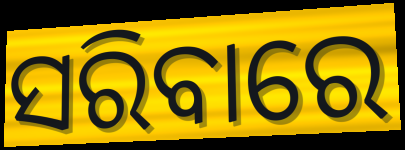
ସରିବାରେ